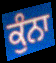
ਕੁੰਨਾ